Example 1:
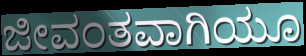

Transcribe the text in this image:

ಜೀವಂತವಾಗಿಯೂ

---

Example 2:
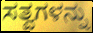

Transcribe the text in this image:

ಸತ್ವಗಳನ್ನು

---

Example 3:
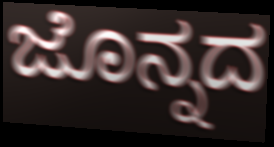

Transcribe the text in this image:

ಜೊನ್ನದ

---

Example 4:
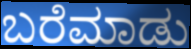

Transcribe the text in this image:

ಬರೆಮಾಡು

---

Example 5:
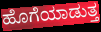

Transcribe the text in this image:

ಹೊಗೆಯಾಡುತ್ತ